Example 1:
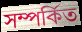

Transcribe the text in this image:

সম্পৰ্কিত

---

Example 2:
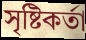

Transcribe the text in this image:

সৃষ্টিকৰ্তা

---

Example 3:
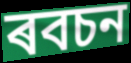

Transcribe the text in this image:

ৰবচন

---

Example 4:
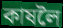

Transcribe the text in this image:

কাষলৈ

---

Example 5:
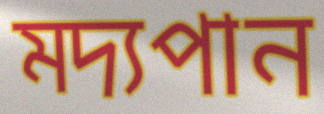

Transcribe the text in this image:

মদ্যপান